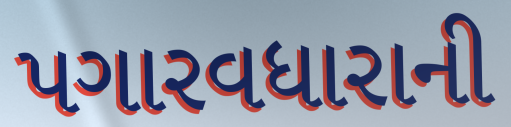
પગારવધારાની